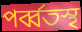
পর্ব্বতস্থ